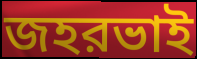
জহরভাই